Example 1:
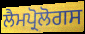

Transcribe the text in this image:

ਲੈਮਪ੍ਰੋਲੋਗਸ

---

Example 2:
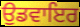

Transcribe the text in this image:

ਉਡਵਾਇਰ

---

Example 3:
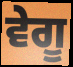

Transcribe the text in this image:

ਵੇਗੂ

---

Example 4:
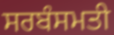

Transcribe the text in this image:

ਸਰਬੰਸਮਤੀ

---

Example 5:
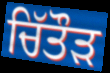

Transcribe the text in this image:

ਚਿੱਤੌੜ